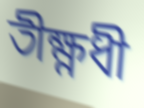
তীক্ষ্ণধী